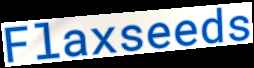
Flaxseeds